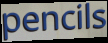
pencils